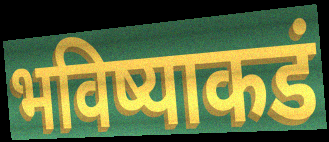
भविष्याकडं